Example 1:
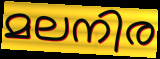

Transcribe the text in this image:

മലനിര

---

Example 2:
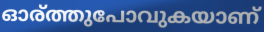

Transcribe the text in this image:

ഓര്ത്തുപോവുകയാണ്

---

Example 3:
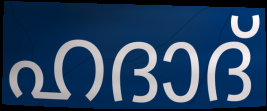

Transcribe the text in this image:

ഹദാദ്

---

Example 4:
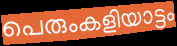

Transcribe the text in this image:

പെരുംകളിയാട്ടം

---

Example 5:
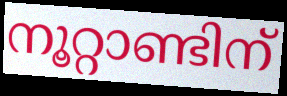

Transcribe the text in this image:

നൂറ്റാണ്ടിന്